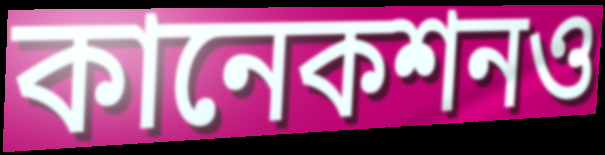
কানেকশনও